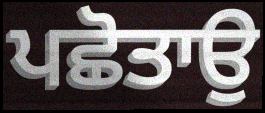
ਪਛੋਤਾਉ